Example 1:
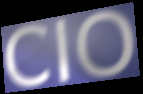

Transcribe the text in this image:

CIO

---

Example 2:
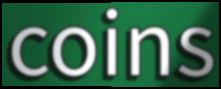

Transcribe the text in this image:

coins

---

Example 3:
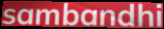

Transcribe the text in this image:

sambandhi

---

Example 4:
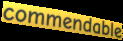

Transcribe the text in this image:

commendable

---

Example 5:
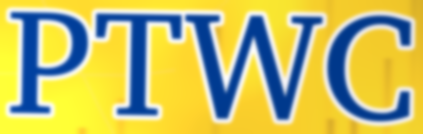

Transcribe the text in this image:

PTWC